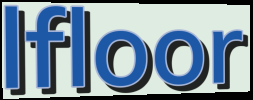
lfloor